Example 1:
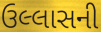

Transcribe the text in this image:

ઉલ્લાસની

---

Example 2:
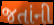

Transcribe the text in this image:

જતાંની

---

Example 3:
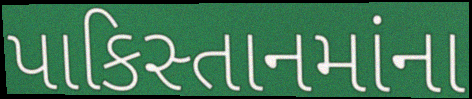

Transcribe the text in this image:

પાકિસ્તાનમાંના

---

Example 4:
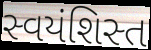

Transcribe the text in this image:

સ્વયંશિસ્ત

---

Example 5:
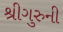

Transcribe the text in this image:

શ્રીગુરુની